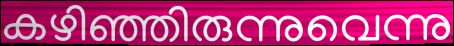
കഴിഞ്ഞിരുന്നുവെന്നു